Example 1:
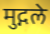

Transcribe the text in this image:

मुद्गले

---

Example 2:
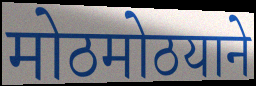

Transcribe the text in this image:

मोठमोठयाने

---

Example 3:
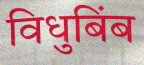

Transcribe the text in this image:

विधुबिंब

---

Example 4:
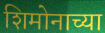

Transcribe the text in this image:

शिमोनाच्या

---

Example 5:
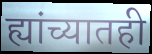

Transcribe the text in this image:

ह्यांच्यातही